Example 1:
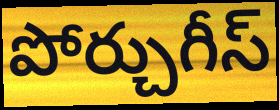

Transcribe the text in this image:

పోర్చుగీస్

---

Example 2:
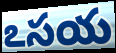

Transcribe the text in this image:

ఽసయ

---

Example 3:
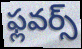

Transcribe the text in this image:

ఫ్లవర్స్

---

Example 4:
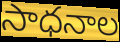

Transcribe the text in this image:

సాధనాల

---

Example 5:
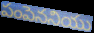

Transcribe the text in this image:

పంపెననియు